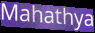
Mahathya